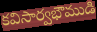
కవిసార్వభౌముడి